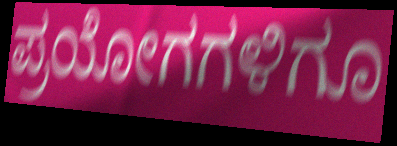
ಪ್ರಯೋಗಗಳಿಗೂ